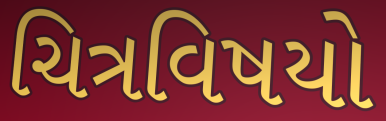
ચિત્રવિષયો